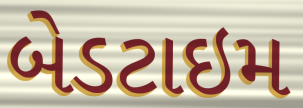
બેડટાઇમ